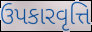
ઉપકારવૃત્તિ